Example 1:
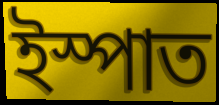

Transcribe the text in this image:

ইস্পাত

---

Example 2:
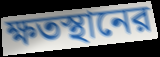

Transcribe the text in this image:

ক্ষতস্থানের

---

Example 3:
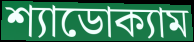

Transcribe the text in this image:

শ্যাডোক্যাম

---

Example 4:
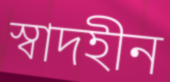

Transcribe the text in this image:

স্বাদহীন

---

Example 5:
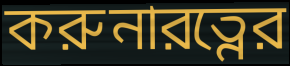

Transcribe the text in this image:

করুনারত্নের